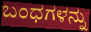
ಬಂಧಗಳನ್ನು